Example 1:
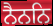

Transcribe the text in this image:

ਨੈਨਨਿ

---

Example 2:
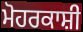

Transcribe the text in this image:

ਮੋਹਰਕਾਸ਼ੀ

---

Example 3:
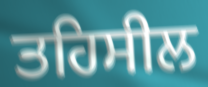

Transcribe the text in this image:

ਤਹਿਸੀਲ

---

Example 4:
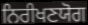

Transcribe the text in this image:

ਨਿਰੀਖਣਯੋਗ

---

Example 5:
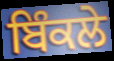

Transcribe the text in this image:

ਬਿੰਕਲੇ